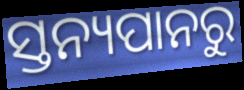
ସ୍ତନ୍ୟପାନରୁ